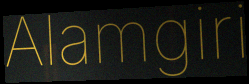
Alamgiri